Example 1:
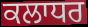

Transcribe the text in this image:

ਕਲਾਧਰ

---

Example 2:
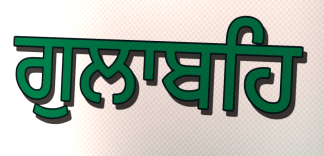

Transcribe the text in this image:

ਗੁਲਾਬਹਿ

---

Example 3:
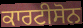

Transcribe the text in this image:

ਕਾਰਟੀਸੋਨ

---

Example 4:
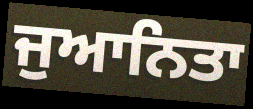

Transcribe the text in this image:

ਜੁਆਨਿਤਾ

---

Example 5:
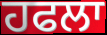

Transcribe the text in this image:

ਹਫਲਾ